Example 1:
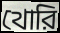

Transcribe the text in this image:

থোরি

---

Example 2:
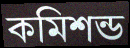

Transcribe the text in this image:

কমিশন্ড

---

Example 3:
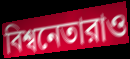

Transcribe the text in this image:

বিশ্বনেতারাও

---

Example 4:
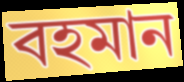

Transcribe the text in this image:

বহমান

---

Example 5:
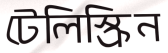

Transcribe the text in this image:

টেলিস্ক্রিন